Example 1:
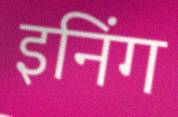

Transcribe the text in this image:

इनिंग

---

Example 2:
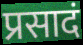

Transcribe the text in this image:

प्रसादं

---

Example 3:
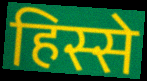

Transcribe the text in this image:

हिस्‍से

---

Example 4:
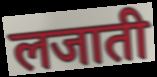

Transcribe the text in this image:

लजाती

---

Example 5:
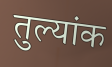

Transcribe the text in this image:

तुल्यांक